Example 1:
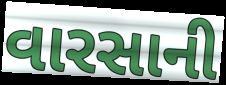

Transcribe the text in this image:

વારસાની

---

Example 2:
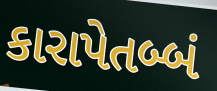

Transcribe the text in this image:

કારાપેતબ્બં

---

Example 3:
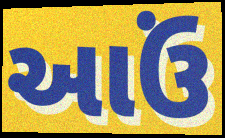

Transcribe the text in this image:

આઉં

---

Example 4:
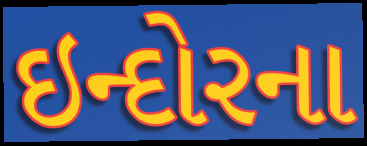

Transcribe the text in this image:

ઇન્દોરના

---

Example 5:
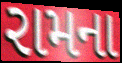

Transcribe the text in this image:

રામના